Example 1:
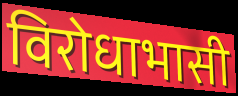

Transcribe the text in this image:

विरोधाभासी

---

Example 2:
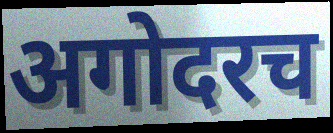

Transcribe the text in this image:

अगोदरच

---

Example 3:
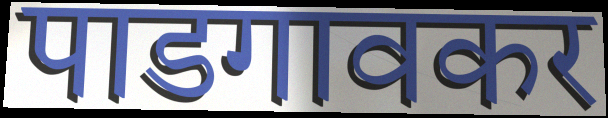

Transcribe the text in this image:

पाडगावकर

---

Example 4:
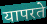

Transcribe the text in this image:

यापरते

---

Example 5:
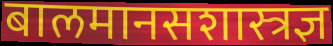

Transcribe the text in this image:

बालमानसशास्त्रज्ञ